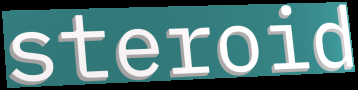
steroid